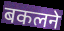
बकलने